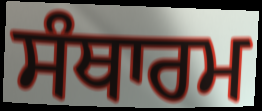
ਸੰਥਾਰਮ